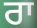
ਰਾ